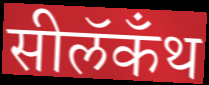
सीलॅकँथ